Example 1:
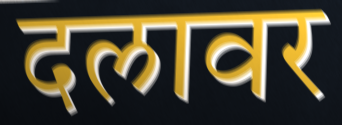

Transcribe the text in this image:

दलावर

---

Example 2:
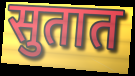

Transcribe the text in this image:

सुतात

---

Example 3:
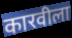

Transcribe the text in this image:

कारवीला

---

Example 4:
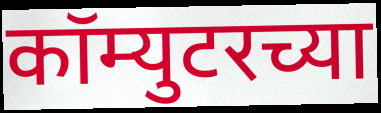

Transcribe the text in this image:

कॉम्युटरच्या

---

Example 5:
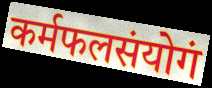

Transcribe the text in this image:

कर्मफलसंयोगं